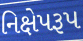
નિક્ષેપરૂપ